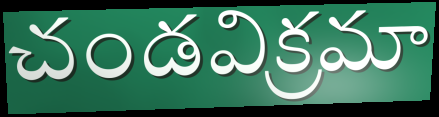
చండవిక్రమా